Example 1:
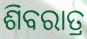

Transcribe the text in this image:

ଶିବରାତ୍ର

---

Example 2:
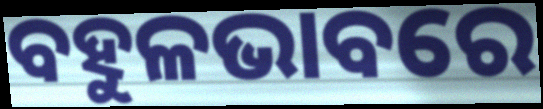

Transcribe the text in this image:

ବହୁଳଭାବରେ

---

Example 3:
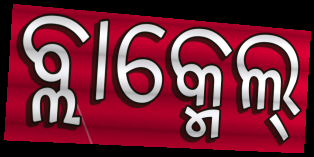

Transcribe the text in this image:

ବ୍ଲାକ୍ମେଲ୍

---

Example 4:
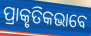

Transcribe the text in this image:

ପ୍ରାକୃତିକଭାବେ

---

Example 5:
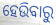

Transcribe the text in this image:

ହେଉିବାରୁ